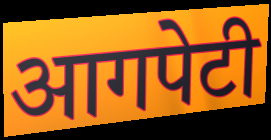
आगपेटी